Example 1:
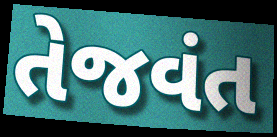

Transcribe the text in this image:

તેજવંત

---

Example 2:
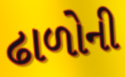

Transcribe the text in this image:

ઢાળોની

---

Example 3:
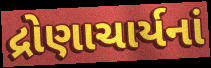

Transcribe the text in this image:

દ્રોણાચાર્યનાં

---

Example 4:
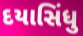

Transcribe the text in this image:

દયાસિંધુ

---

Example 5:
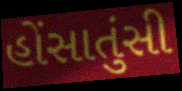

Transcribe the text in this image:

હોંસાતુંસી